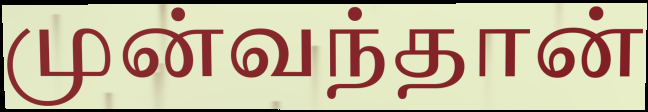
முன்வந்தான்